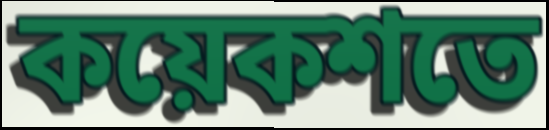
কয়েকশতে